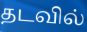
தடவில்